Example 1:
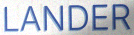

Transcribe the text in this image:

LANDER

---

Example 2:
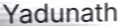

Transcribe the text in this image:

Yadunath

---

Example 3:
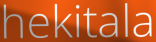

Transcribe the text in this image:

hekitala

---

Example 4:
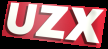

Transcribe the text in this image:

UZX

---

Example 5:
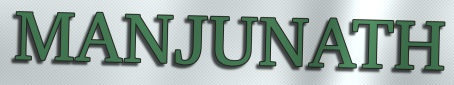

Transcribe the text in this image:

MANJUNATH